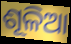
ଶୂଳିଆ